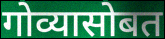
गोव्यासोबत